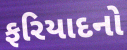
ફરિયાદનો